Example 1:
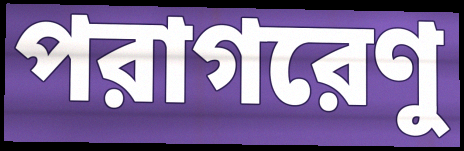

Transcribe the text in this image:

পরাগরেণু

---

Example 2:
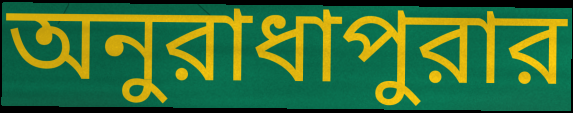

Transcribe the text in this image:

অনুরাধাপুরার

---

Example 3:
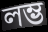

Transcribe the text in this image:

লম্ভ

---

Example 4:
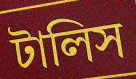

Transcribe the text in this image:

টালিস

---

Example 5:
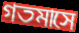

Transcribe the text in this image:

গতমাসে